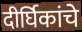
दीर्घिकांचे